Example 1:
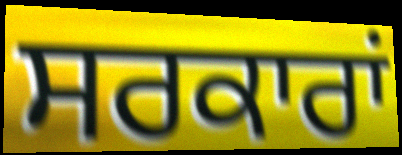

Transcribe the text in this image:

ਸਰਕਾਰਾਂ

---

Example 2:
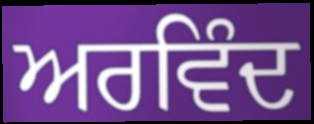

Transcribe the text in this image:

ਅਰਵਿੰਦ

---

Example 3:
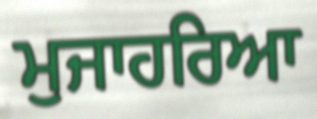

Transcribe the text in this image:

ਮੁਜਾਹਰਿਆ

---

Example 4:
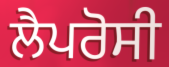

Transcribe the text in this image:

ਲੈਪਰੋਸੀ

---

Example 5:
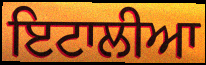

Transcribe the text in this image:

ਇਟਾਲੀਆ